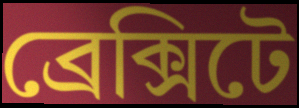
ব্রেক্সিটে